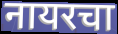
नायरचा